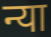
न्या